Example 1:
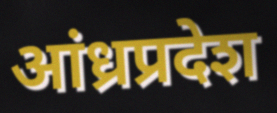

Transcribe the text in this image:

आंध्रप्रदेश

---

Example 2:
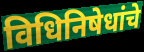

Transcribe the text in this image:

विधिनिषेधांचे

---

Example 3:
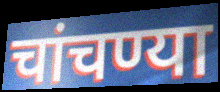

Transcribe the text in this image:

चांचण्या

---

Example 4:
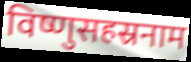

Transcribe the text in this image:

विष्णुसहस्रनाम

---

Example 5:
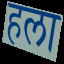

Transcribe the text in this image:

हला